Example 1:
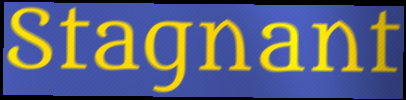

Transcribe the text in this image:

Stagnant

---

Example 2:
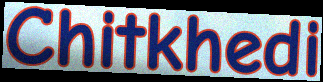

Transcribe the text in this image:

Chitkhedi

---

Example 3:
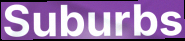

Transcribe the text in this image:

Suburbs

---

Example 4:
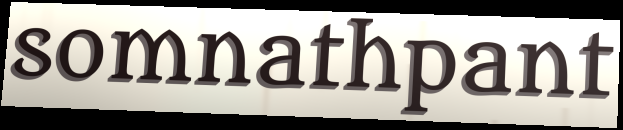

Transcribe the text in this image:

somnathpant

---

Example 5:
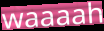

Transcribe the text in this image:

waaaah